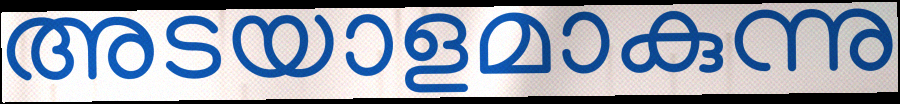
അടയാളമാകുന്നു